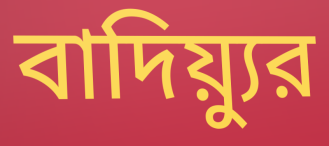
বাদিয়্যুর